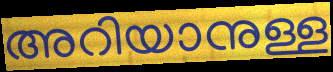
അറിയാനുള്ള